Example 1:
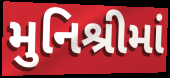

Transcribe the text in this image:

મુનિશ્રીમાં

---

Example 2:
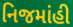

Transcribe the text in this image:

નિજમાંહી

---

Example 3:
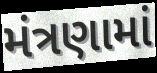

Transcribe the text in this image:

મંત્રણામાં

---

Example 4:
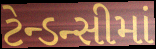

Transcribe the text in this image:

ટેન્ડન્સીમાં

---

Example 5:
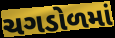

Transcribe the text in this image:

ચગડોળમાં